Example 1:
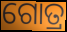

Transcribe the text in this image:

ଗୋତ୍ର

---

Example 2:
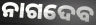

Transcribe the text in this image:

ନାଗଦେବ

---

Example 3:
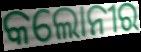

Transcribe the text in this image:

କଲୋନୀର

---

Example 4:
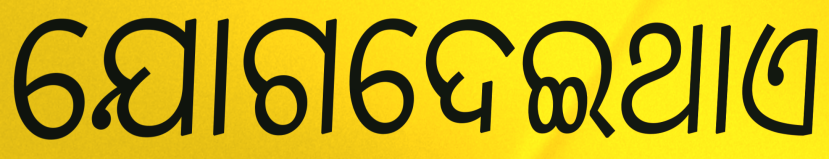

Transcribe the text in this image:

ଯୋଗଦେଇଥାଏ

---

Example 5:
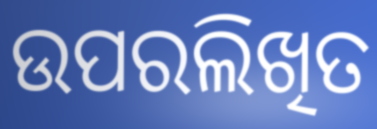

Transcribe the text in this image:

ଉପରଲିଖିତ